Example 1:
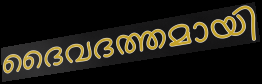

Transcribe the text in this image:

ദൈവദത്തമായി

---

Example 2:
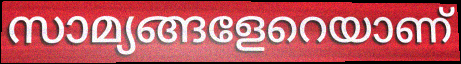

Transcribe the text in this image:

സാമ്യങ്ങളേറെയാണ്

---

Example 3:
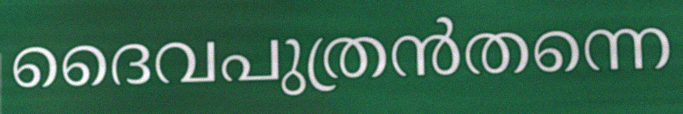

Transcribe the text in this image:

ദൈവപുത്രൻതന്നെ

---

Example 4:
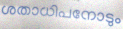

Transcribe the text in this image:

ശതാധിപനോടും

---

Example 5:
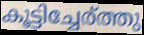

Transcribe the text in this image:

കൂട്ടിച്ചേര്ത്തു